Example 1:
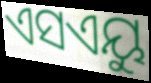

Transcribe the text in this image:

ଏସଏୟୁ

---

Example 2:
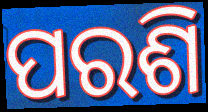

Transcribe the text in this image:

ପରଶି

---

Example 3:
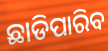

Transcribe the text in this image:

ଛାଡିପାରିବ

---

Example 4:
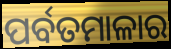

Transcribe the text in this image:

ପର୍ବତମାଳାର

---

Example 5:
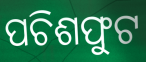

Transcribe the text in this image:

ପଚିଶଫୁଟ